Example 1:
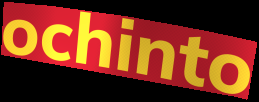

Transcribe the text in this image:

ochinto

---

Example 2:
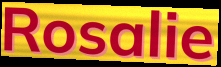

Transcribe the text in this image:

Rosalie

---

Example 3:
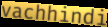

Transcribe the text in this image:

vachhindi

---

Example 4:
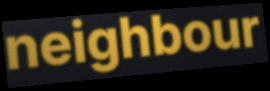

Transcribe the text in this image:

neighbour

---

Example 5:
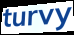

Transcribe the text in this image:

turvy